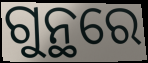
ଗୁନ୍ଥରେ